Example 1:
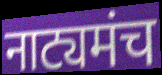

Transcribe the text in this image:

नाट्यमंच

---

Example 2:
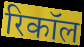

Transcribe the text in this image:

रिकॉल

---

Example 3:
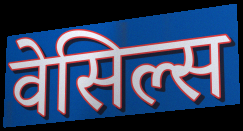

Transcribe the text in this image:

वेसिल्स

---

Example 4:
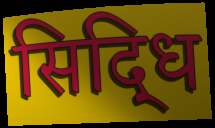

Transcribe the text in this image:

सिद्धि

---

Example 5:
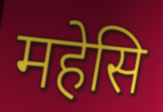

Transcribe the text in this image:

महेसि